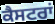
ਕੈਸਟਰਾਂ